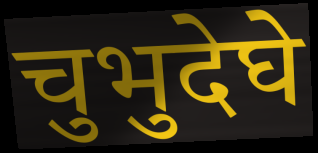
चुभुदेघे